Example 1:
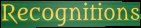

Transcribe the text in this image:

Recognitions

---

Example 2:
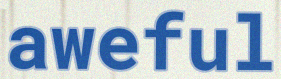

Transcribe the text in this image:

aweful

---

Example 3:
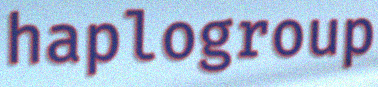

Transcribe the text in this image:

haplogroup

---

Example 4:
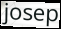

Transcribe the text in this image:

josep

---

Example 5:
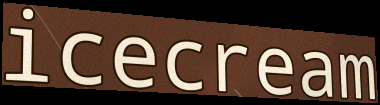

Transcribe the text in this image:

icecream